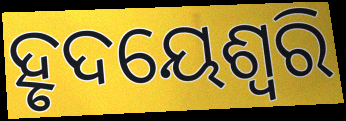
ହୃଦୟେଶ୍ଵରି